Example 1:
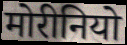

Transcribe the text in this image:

मोरीनियो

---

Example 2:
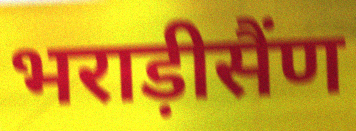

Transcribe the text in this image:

भराड़ीसैंण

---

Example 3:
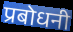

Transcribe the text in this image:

प्रबोधनी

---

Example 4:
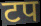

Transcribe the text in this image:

टप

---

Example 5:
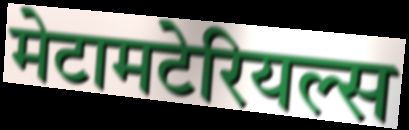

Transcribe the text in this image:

मेटामटेरियल्स